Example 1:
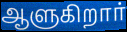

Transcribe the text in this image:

ஆளுகிறார்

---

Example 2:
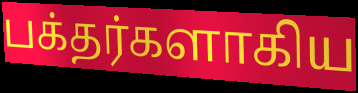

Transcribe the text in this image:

பக்தர்களாகிய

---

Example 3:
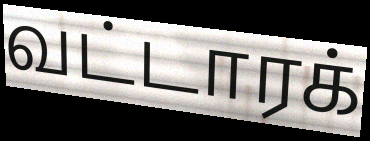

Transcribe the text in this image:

வட்டாரக்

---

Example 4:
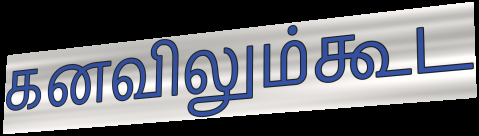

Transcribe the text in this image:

கனவிலும்கூட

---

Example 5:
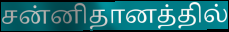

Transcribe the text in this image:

சன்னிதானத்தில்